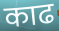
काढ